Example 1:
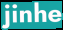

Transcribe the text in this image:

jinhe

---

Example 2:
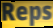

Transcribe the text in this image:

Reps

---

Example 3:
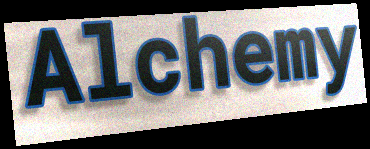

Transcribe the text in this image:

Alchemy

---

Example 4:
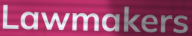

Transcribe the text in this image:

Lawmakers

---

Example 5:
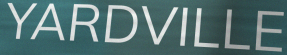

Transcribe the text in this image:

YARDVILLE